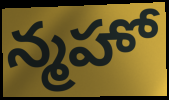
న్మహో